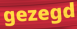
gezegd